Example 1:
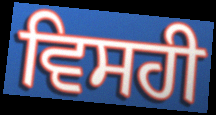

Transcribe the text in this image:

ਵਿਸਹੀ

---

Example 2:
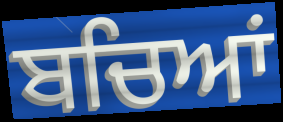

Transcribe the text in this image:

ਬਚਿਆਂ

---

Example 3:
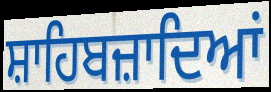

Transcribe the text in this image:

ਸ਼ਾਹਿਬਜ਼ਾਦਿਆਂ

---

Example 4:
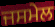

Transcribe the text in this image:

ਜਸਮੇਲ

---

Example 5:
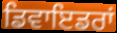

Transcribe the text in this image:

ਡਿਵਾਇਡਰਾਂ